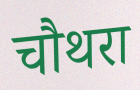
चौथरा